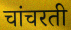
चांचरती